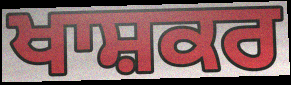
ਖਾਸ਼ਕਰ